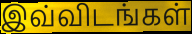
இவ்விடங்கள்